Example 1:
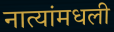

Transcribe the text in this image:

नात्यांमधली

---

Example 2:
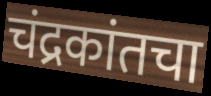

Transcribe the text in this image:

चंद्रकांतचा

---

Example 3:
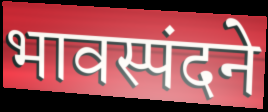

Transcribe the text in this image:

भावस्पंदने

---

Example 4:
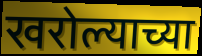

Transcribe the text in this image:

खरोल्याच्या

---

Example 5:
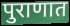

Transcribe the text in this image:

पुराणात